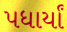
પધાર્યાં